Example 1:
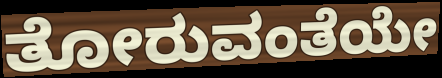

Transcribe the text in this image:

ತೋರುವಂತೆಯೇ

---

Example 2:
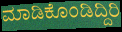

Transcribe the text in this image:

ಮಾಡಿಕೊಂಡಿದ್ದಿರಿ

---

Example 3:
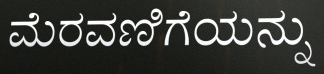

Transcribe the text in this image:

ಮೆರವಣಿಗೆಯನ್ನು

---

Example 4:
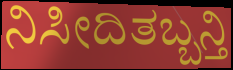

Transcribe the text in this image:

ನಿಸೀದಿತಬ್ಬನ್ತಿ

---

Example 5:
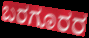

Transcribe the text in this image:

ಬರಗೂರರ